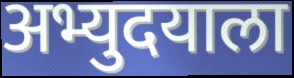
अभ्युदयाला